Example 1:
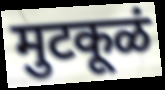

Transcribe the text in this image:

मुटकूळं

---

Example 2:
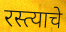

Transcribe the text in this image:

रस्त्याचे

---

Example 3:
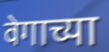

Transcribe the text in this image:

वेगाच्या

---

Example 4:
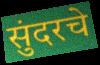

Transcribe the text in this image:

सुंदरचे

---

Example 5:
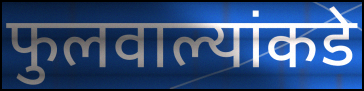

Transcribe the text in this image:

फुलवाल्यांकडे